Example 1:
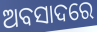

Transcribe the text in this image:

ଅବସାଦରେ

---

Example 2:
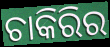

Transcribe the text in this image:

ଚାକିରିର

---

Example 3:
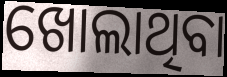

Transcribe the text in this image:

ଖୋଲାଥିବା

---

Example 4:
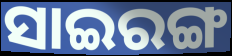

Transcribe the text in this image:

ସାଇରଙ୍ଗ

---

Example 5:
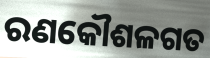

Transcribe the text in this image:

ରଣକୌଶଳଗତ